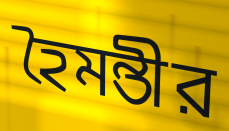
হৈমন্তীর